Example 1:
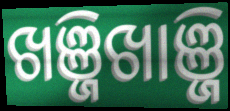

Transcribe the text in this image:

ଖଞ୍ଜିଖାଞ୍ଜି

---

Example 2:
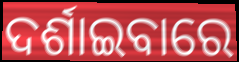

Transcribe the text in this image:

ଦର୍ଶାଇବାରେ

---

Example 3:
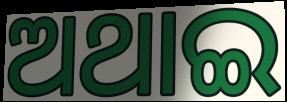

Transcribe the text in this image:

ଅଥାଇ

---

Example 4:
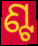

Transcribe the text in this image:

ଣ୍ଟ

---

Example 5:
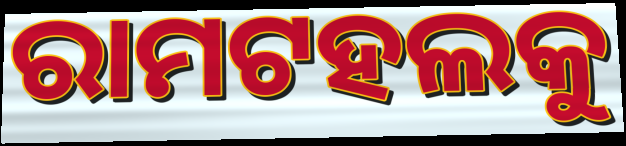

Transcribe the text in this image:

ରାମଟହଲକୁ